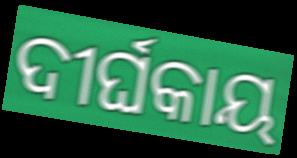
ଦୀର୍ଘକାୟ